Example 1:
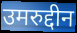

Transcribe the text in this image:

उमरुद्दीन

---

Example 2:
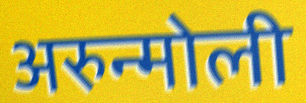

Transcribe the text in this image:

अरुन्मोली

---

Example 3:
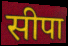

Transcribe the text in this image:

सीपा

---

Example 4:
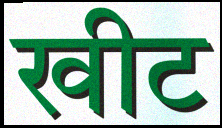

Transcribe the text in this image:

खीट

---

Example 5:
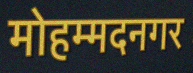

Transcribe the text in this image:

मोहम्मदनगर